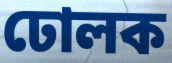
ঢোলক